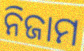
ନିଜାମ